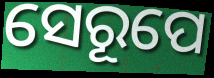
ସେରୂପେ